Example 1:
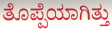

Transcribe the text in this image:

ತೊಪ್ಪೆಯಾಗಿತ್ತು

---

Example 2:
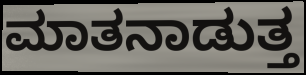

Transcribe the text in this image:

ಮಾತನಾಡುತ್ತ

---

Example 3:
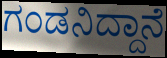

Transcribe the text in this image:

ಗಂಡನಿದ್ದಾನೆ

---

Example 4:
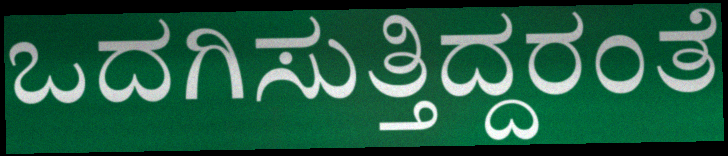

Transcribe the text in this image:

ಒದಗಿಸುತ್ತಿದ್ದರಂತೆ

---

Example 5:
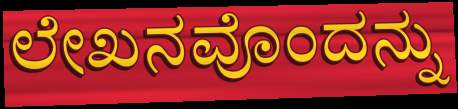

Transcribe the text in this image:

ಲೇಖನವೊಂದನ್ನು